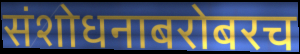
संशोधनाबरोबरच